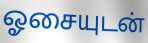
ஓசையுடன்